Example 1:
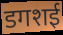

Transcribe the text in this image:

डगशई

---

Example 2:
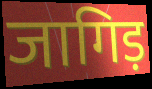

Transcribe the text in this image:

जागिड़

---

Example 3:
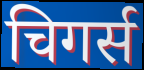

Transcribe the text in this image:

चिगर्स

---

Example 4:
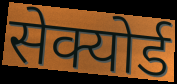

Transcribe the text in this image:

सेक्योर्ड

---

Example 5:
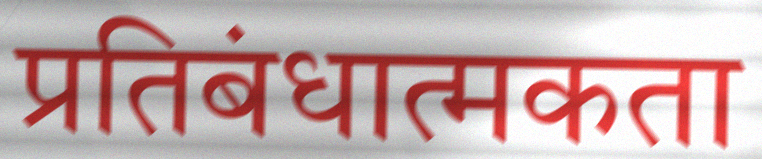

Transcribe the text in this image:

प्रतिबंधात्मकता